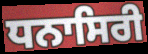
ਧਨਾਸਿਰੀ